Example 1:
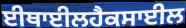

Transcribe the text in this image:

ਈਥਾਈਲਹੈਕਸਾਈਲ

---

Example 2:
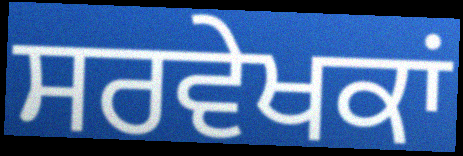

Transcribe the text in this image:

ਸਰਵੇਖਕਾਂ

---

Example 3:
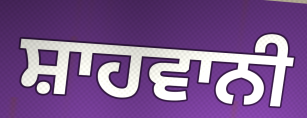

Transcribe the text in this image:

ਸ਼ਾਹਵਾਨੀ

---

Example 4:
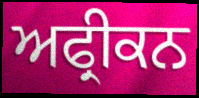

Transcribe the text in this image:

ਅਫ੍ਰੀਕਨ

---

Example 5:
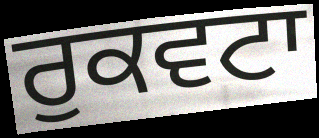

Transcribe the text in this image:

ਰੁਕਵਟਾ